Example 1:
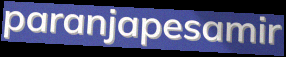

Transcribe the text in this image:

paranjapesamir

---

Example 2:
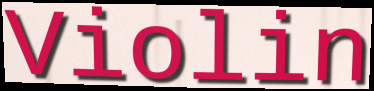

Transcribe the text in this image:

Violin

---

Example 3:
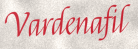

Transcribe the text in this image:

Vardenafil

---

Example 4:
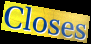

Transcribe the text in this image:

Closes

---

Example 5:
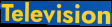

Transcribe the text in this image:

Television